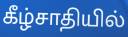
கீழ்சாதியில்